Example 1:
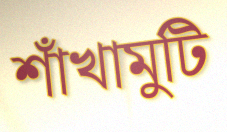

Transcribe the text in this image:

শাঁখামুটি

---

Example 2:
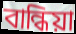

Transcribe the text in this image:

বান্ধিয়া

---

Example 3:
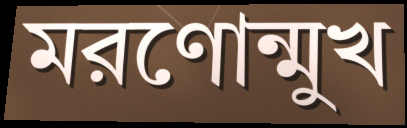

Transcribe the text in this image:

মরণোন্মুখ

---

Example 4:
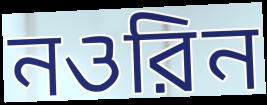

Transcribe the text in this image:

নওরিন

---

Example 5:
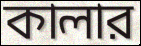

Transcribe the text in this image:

কালার